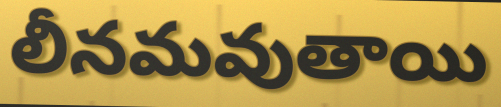
లీనమవుతాయి